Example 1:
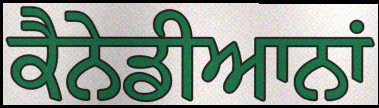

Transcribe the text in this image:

ਕੈਨੇਡੀਆਨਾਂ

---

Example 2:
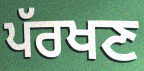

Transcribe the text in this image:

ਪੱਰਖਣ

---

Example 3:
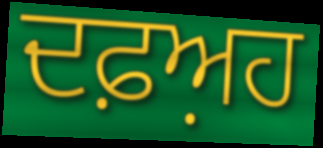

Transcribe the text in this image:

ਦਫ਼ਅ਼ਹ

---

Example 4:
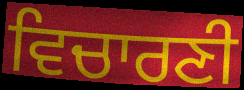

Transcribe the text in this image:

ਵਿਚਾਰਣੀ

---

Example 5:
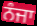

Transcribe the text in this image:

ਨੰਜਾ